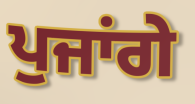
ਪੁਜਾਂਗੇ